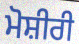
ਮੋਸ਼ੀਰੀ